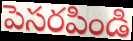
పెసరపిండి